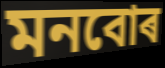
মনবোৰ